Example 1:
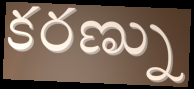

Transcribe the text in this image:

కరణ్ను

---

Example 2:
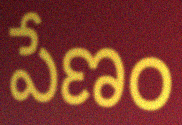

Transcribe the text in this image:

పేణం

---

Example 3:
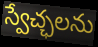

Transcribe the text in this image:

స్వేచ్ఛలను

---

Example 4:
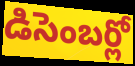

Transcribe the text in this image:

డిసెంబర్లో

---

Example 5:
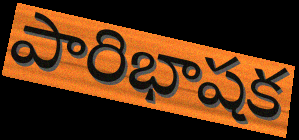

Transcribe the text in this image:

పారిభాషక